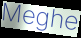
Meghe